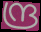
ന്ദ്ര